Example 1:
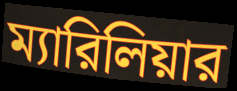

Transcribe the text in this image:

ম্যারিলিয়ার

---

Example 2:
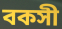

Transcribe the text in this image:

বকসী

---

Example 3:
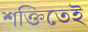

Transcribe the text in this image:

শক্তিতেই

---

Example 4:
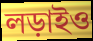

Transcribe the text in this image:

লড়াইও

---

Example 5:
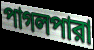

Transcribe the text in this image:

পাগলপারা